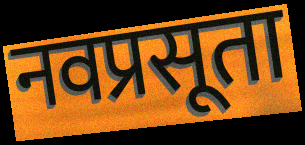
नवप्रसूता